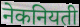
नेकनियती